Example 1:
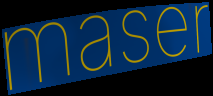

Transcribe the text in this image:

maser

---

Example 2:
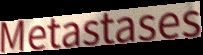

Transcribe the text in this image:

Metastases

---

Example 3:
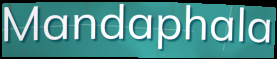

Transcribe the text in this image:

Mandaphala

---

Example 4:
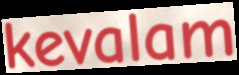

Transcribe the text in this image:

kevalam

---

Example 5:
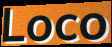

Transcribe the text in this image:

Loco